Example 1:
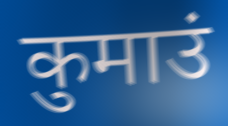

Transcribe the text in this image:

कुमाउं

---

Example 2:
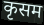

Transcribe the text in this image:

कृसम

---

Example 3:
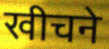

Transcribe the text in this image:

खीचने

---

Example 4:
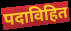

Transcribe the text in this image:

पदाविहित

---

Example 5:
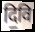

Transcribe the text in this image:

दि॒वि